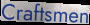
Craftsmen